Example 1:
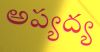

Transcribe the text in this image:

అప్యద్య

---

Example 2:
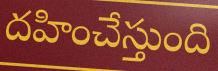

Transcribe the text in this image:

దహించేస్తుంది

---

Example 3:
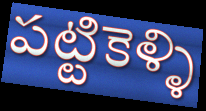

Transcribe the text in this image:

పట్టికెళ్ళి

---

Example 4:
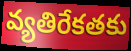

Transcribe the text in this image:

వ్యతిరేకతకు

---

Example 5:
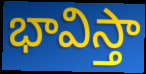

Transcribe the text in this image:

భావిస్తా